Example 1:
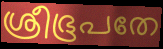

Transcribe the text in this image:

ശ്രീഭൂപതേ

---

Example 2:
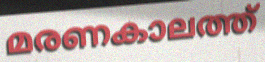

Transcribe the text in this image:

മരണകാലത്ത്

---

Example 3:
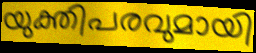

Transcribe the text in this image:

യുക്തിപരവുമായി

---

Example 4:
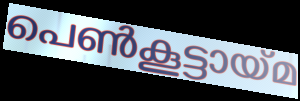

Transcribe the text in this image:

പെൺകൂട്ടായ്മ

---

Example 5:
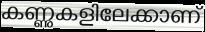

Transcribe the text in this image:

കണ്ണുകളിലേക്കാണ്